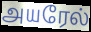
அயரேல்